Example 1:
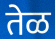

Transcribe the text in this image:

तेळ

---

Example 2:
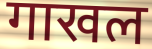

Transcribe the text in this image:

गाखल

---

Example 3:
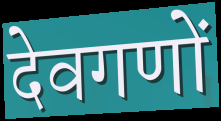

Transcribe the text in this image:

देवगणों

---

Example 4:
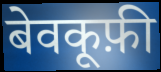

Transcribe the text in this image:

बेवकूफ़ी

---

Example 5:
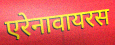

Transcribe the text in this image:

एरेनावायरस